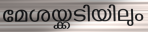
മേശയ്ക്കടിയിലും